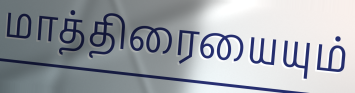
மாத்திரையையும்